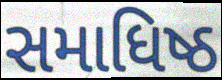
સમાધિષ્ઠ